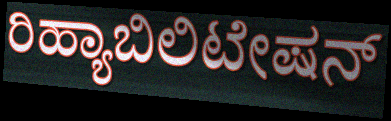
ರಿಹ್ಯಾಬಿಲಿಟೇಷನ್